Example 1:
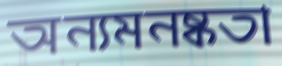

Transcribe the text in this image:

অন্যমনষ্কতা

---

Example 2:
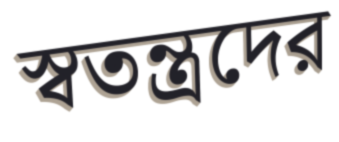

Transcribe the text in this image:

স্বতন্ত্রদের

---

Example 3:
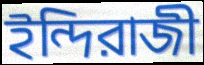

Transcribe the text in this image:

ইন্দিরাজী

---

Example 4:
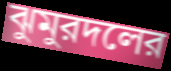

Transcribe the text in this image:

ঝুমুরদলের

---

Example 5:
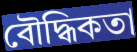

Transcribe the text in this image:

বৌদ্ধিকতা